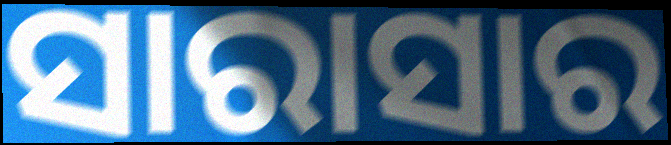
ସାରାସାର